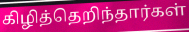
கிழித்தெறிந்தார்கள்